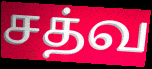
சத்வ